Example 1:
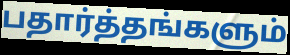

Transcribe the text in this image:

பதார்த்தங்களும்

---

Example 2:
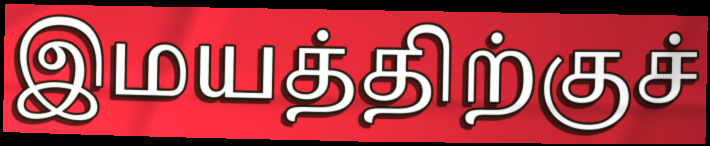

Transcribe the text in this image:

இமயத்திற்குச்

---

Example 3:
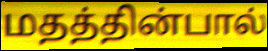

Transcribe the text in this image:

மதத்தின்பால்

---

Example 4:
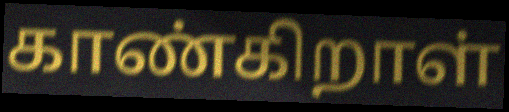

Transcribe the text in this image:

காண்கிறாள்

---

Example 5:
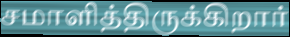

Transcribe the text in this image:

சமாளித்திருக்கிறார்